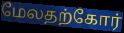
மேலதற்கோர்